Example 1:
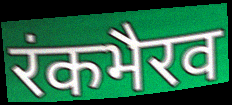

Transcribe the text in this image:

रंकभैरव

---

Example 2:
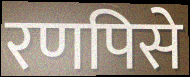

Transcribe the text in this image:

रणपिसे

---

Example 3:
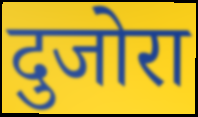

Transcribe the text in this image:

दुजोरा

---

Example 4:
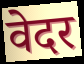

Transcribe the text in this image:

वेदर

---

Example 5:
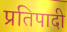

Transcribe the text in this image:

प्रतिपादी